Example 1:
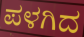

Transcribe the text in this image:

ಪಳಗಿದ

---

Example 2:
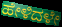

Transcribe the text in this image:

ಹೇಳಿದಳೇ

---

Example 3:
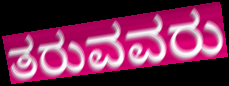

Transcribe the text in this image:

ತರುವವರು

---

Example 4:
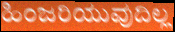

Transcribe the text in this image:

ಹಿಂಜರಿಯುವುದಿಲ್ಲ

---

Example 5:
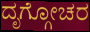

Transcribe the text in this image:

ದೃಗ್ಗೋಚರ